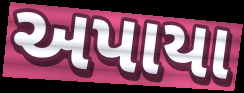
અપાયા